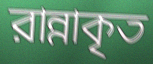
রান্নাকৃত